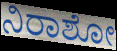
ನಿರಾಶೋ